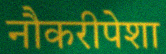
नौकरीपेशा